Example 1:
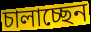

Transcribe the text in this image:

চালাচ্ছেন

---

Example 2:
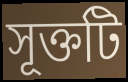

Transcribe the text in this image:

সূক্তটি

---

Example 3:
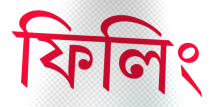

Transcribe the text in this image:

ফিলিং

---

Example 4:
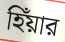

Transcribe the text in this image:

হিঁয়ার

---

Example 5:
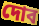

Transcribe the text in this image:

দোব